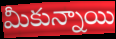
మీకున్నాయి